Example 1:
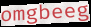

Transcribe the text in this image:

omgbeeg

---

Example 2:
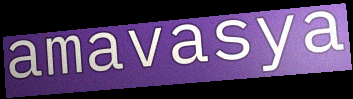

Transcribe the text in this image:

amavasya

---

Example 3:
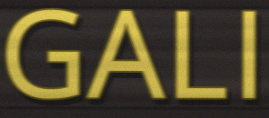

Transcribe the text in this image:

GALI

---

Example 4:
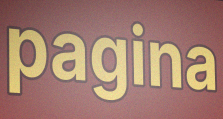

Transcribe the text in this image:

pagina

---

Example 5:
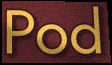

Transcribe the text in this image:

Pod